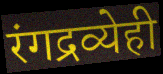
रंगद्रव्येही